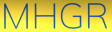
MHGR